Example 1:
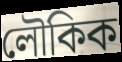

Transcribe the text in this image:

লৌকিক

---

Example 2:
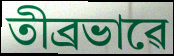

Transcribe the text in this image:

তীব্ৰভাৱে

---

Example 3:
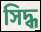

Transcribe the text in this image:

সিদ্ধ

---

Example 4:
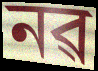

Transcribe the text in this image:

নৱ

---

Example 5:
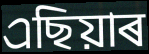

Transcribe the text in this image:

এছিয়াৰ